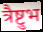
त्रैष्टुभ